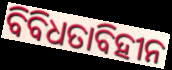
ବିବିଧତାବିହୀନ